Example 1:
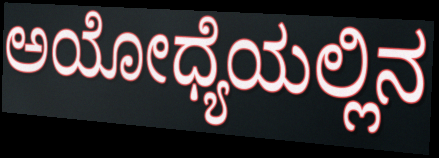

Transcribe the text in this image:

ಅಯೋಧ್ಯೆಯಲ್ಲಿನ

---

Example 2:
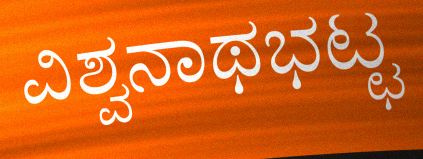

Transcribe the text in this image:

ವಿಶ್ವನಾಥಭಟ್ಟ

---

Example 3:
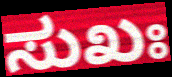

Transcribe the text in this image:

ಸುಖಃ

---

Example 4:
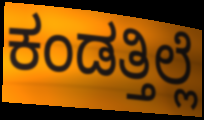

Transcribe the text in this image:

ಕಂಡತ್ತಿಲ್ಲೆ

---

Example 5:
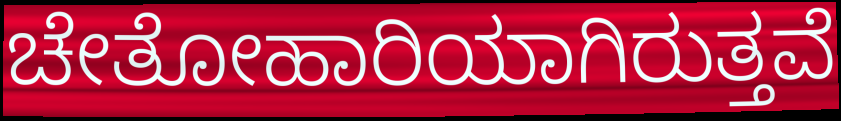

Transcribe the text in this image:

ಚೇತೋಹಾರಿಯಾಗಿರುತ್ತವೆ